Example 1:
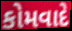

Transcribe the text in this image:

કોમવાદે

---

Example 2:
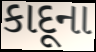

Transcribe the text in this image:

કાદૂના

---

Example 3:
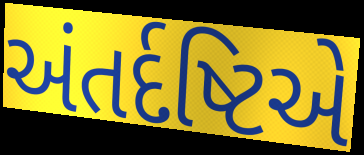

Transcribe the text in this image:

અંતર્દષ્ટિએ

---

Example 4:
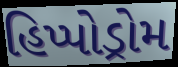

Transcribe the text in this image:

હિપ્પોડ્રોમ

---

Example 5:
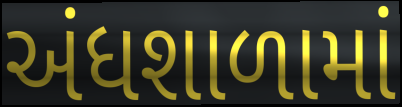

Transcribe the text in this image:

અંધશાળામાં